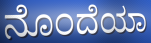
ನೊಂದೆಯಾ